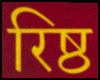
रिष्ठ